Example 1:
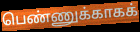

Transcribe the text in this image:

பெண்ணுக்காகக்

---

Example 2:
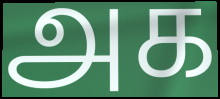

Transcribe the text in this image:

அக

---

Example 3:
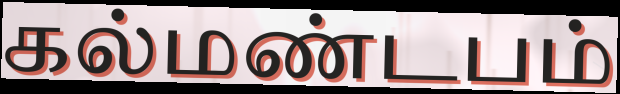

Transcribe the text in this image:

கல்மண்டபம்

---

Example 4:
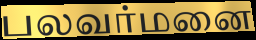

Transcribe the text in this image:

பலவர்மனை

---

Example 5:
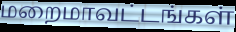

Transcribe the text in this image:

மறைமாவட்டங்கள்